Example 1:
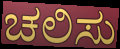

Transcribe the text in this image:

ಚಲಿಸು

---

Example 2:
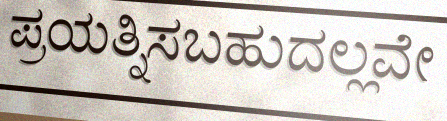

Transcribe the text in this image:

ಪ್ರಯತ್ನಿಸಬಹುದಲ್ಲವೇ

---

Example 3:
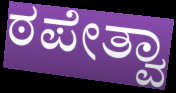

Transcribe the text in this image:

ಠಪೇತ್ವಾ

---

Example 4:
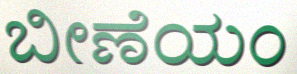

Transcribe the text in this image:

ಬೀಣೆಯಂ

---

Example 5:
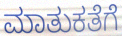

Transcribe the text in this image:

ಮಾತುಕತೆಗೆ